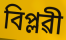
বিপ্লৱী